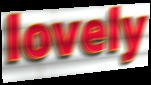
lovely